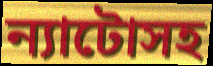
ন্যাটোসহ